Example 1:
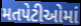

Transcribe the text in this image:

મતપેટીઓમાં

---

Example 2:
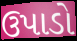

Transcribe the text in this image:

ઉપાડો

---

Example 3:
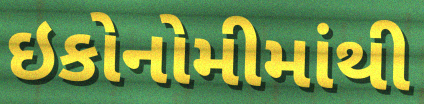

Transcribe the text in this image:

ઇકોનોમીમાંથી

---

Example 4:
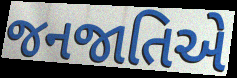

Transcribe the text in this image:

જનજાતિએ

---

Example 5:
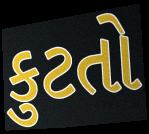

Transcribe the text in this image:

કુટતો